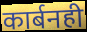
कार्बनही